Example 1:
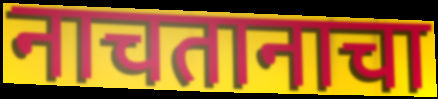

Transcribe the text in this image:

नाचतानाचा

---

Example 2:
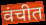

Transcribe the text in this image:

वंचीत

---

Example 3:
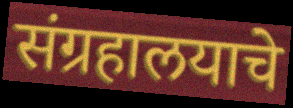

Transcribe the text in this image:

संग्रहालयाचे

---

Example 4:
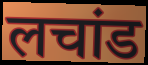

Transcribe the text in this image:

लचांड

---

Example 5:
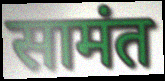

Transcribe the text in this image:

सामंत